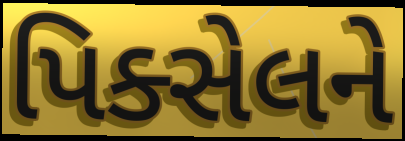
પિક્સેલને